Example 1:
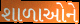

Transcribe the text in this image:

શાળાઓને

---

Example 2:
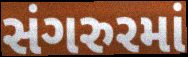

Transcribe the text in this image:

સંગરુરમાં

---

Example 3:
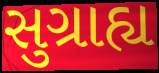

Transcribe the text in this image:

સુગ્રાહ્ય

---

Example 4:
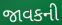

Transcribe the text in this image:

જાવકની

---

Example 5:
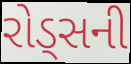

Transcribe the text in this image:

રોડ્સની